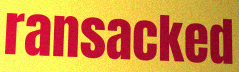
ransacked